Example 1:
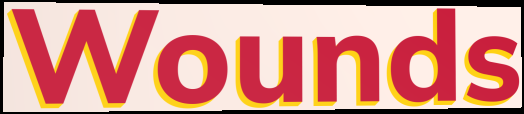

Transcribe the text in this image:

Wounds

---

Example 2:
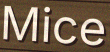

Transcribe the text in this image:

Mice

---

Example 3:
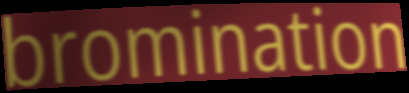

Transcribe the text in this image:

bromination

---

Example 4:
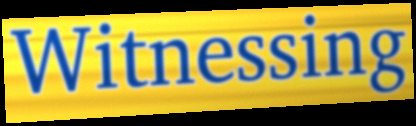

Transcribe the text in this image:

Witnessing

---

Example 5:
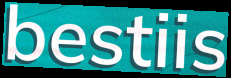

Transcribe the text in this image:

bestiis